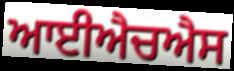
ਆਈਐਚਐਸ